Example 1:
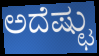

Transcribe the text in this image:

ಅದೆಷ್ಟು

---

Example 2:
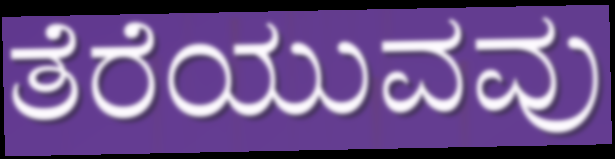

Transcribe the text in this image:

ತೆರೆಯುವವು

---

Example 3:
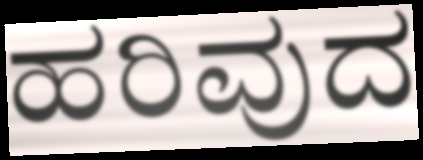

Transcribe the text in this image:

ಹರಿವುದ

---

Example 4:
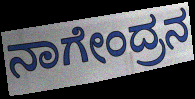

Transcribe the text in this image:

ನಾಗೇಂದ್ರನ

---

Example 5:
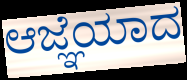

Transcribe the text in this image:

ಆಜ್ಞೆಯಾದ